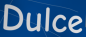
Dulce